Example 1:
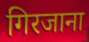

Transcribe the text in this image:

गिरजाना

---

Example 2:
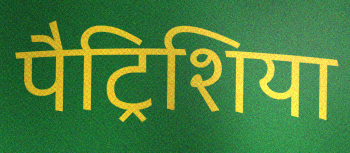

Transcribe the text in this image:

पैट्रिशिया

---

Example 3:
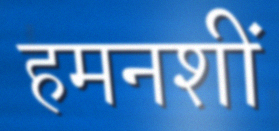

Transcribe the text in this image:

हमनशीं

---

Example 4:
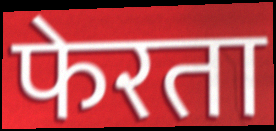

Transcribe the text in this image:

फेरता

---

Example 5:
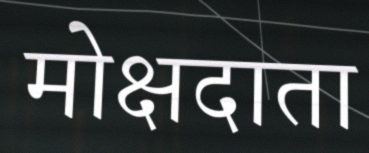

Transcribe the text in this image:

मोक्षदाता